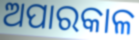
ଅପାରକାଳ